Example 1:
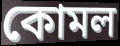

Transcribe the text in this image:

কোমল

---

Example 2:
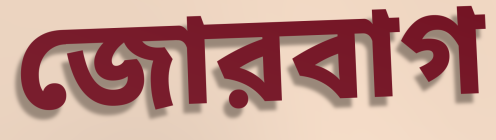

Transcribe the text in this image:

জোরবাগ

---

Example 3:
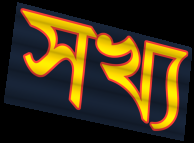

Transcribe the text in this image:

সখ্য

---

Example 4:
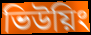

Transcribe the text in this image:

ভিউয়িং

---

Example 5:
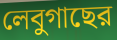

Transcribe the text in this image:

লেবুগাছের